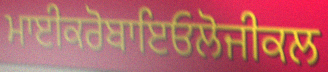
ਮਾਈਕਰੋਬਾਇਓਲੋਜੀਕਲ